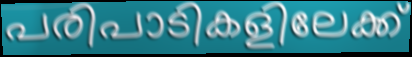
പരിപാടികളിലേക്ക്